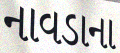
નાવડાના